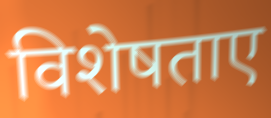
विशेषताए